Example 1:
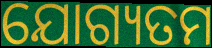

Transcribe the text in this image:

ଯୋଗ୍ୟତମ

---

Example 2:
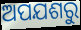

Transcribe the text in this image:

ଅପଯଶରୁ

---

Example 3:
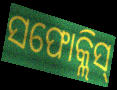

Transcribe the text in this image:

ସଫୋକ୍ଲିସ୍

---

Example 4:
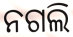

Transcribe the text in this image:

ନଗଲି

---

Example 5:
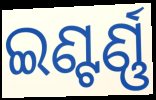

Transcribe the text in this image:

ଇଣ୍ଟର୍ଣ୍ଣ